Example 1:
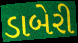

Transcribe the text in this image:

ડાબેરી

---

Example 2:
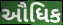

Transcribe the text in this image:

ઔધિક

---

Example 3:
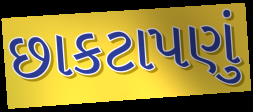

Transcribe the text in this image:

છાકટાપણું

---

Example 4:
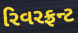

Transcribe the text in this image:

રિવરફ્રન્ટ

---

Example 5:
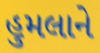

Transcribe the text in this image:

હુમલાને